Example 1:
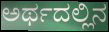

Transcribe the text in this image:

ಅರ್ಥದಲ್ಲಿನ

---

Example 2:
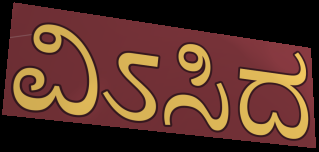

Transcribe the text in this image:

ವಿಽಸಿದ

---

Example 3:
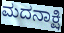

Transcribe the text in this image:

ಮದನಾಕ್ಷಿ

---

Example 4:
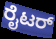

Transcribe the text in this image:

ರೈಟರ್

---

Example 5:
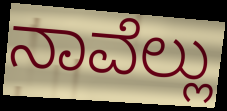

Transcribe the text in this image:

ನಾವೆಲ್ಲು